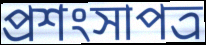
প্ৰশংসাপত্ৰ